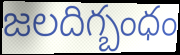
జలదిగ్బంధం